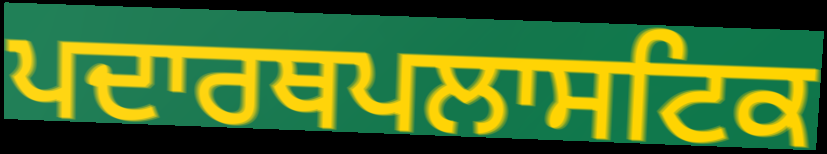
ਪਦਾਰਥਪਲਾਸਟਿਕ